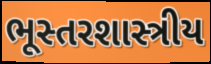
ભૂસ્તરશાસ્ત્રીય